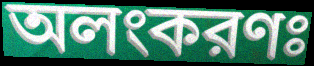
অলংকরণঃ